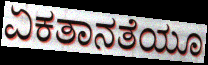
ಏಕತಾನತೆಯೂ